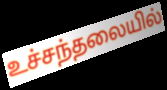
உச்சந்தலையில்